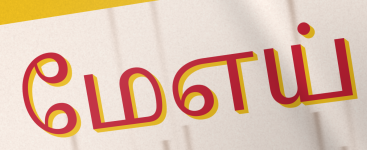
மேஎய்